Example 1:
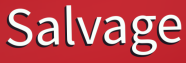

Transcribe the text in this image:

Salvage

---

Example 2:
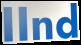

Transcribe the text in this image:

IInd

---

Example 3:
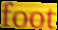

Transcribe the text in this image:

foot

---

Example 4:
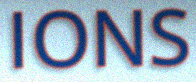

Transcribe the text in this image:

IONS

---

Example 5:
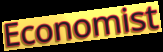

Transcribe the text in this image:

Economist